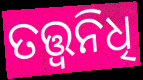
ତତ୍ତ୍ଵନିଧି